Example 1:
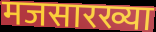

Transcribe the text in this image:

मजसारख्या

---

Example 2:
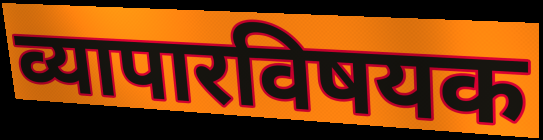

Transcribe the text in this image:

व्यापारविषयक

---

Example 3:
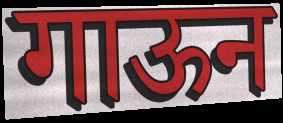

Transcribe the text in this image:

गाऊन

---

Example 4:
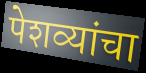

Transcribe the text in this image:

पेशव्यांचा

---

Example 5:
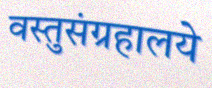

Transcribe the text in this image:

वस्तुसंग्रहालये